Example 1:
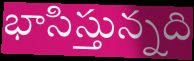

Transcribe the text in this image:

భాసిస్తున్నది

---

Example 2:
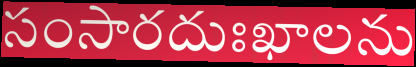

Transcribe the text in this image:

సంసారదుఃఖాలను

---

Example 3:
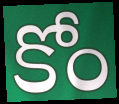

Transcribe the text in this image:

కోం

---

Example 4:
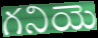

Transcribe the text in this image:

గనియె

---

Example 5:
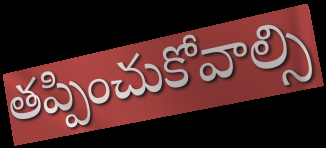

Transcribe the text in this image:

తప్పించుకోవాల్సి